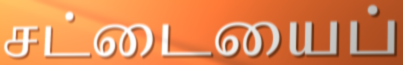
சட்டையைப்